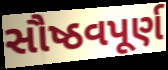
સૌષ્ઠવપૂર્ણ